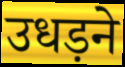
उधड़ने